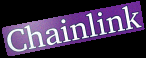
Chainlink